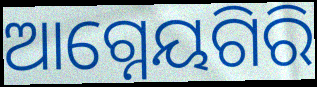
ଆଗ୍ନେୟଗିରି